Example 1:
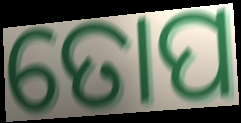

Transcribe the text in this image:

ତୋପ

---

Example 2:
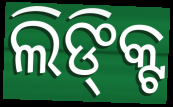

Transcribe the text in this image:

ଲିଙ୍କ୍ଟି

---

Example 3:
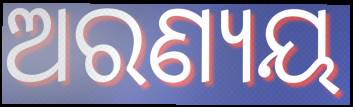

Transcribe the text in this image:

ଅରଣ୍ୟୟ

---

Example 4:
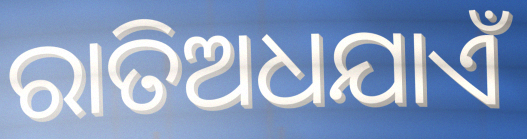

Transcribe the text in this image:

ରାତିଅଧଯାଏଁ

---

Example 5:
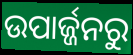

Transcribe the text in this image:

ଉପାର୍ଜ୍ଜନରୁ